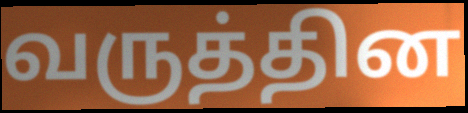
வருத்தின